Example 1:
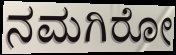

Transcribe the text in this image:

ನಮಗಿರೋ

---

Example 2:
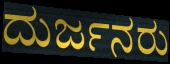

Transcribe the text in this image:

ದುರ್ಜನರು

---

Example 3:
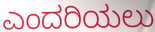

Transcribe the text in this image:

ಎಂದರಿಯಲು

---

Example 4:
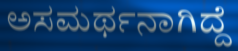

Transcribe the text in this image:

ಅಸಮರ್ಥನಾಗಿದ್ದೆ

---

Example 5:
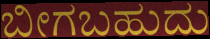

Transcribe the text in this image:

ಬೀಗಬಹುದು